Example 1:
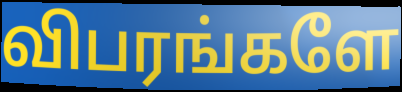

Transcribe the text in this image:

விபரங்களே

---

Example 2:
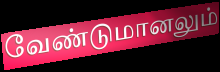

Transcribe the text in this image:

வேண்டுமானலும்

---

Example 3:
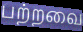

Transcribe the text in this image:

பற்றவை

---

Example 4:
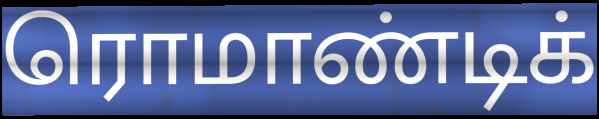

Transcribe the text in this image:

ரொமாண்டிக்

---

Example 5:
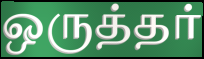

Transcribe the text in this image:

ஒருத்தர்